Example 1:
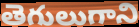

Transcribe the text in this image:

తెగులుగాని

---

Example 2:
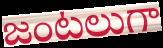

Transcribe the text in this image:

జంటలుగా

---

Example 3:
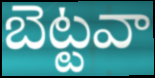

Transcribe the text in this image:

బెట్టవా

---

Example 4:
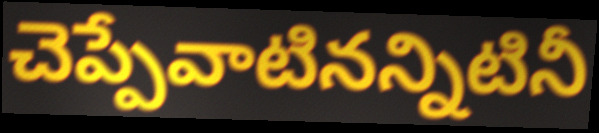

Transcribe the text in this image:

చెప్పేవాటినన్నిటినీ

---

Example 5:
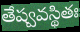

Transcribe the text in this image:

తేష్వవస్థితః